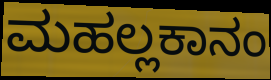
ಮಹಲ್ಲಕಾನಂ